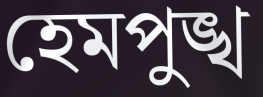
হেমপুঙ্খ